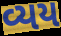
વ્યય